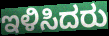
ಇಳಿಸಿದರು